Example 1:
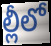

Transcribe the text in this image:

ల్లీలో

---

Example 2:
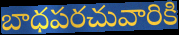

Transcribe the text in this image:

బాధపరచువారికి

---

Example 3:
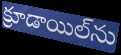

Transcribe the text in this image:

క్రూడాయిల్‌ను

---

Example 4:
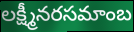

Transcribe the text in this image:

లక్ష్మీనరసమాంబ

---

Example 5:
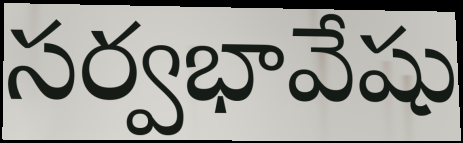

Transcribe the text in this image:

సర్వభావేషు